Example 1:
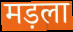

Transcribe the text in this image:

मड़ला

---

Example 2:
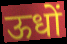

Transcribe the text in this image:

ऊधों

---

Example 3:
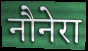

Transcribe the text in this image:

नौनेरा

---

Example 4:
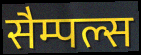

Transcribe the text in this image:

सैम्‍पल्‍स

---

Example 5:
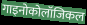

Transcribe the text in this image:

गाइनोकोलॉजिकल